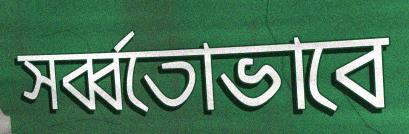
সর্ব্বতোভাবে